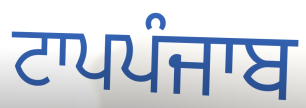
ਟਾਪਪੰਜਾਬ